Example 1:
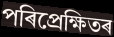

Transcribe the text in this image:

পৰিপ্ৰেক্ষিতৰ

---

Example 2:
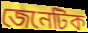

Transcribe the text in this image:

জেনেটিক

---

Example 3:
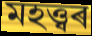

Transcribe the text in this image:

মহত্ত্বৰ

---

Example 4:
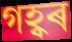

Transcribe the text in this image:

গহ্বৰ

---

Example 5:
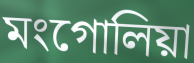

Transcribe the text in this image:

মংগোলিয়া